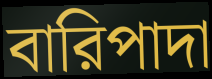
বারিপাদা